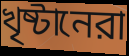
খৃষ্টানেরা